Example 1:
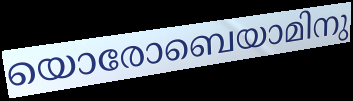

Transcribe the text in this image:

യൊരോബെയാമിനു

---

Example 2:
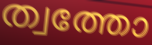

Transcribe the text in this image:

ത്വത്തോ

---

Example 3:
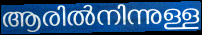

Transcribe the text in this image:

ആരിൽനിന്നുള്ള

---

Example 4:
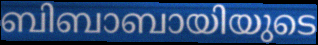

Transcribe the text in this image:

ബിബാബായിയുടെ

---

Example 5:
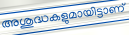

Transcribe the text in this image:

അശുദ്ധകളുമായിട്ടാണ്